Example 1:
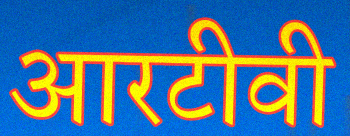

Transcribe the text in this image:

आरटीवी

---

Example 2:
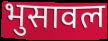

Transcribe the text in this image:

भुसावल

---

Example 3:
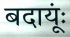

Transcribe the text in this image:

बदायूंः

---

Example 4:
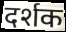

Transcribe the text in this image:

दर्शक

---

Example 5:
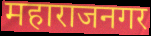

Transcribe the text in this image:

महाराजनगर